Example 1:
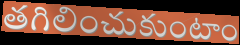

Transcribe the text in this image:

తగిలించుకుంటాం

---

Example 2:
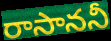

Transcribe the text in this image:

రాసాననీ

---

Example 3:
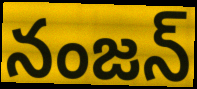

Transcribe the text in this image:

నంజన్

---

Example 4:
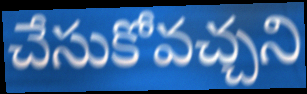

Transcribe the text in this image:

చేసుకోవచ్చని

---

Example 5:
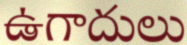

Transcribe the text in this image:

ఉగాదులు